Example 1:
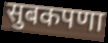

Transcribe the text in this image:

सुबकपणा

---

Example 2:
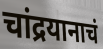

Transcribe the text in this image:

चांद्रयानाचं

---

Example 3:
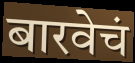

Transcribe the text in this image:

बारवेचं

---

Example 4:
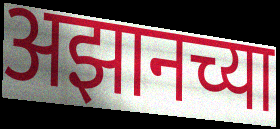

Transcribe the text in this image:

अझानच्या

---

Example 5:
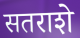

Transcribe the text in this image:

सतराशे